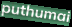
puthumai